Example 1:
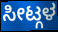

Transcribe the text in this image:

ಸೀಟ್ಗಳ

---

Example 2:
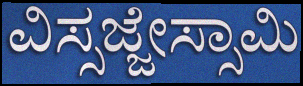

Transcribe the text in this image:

ವಿಸ್ಸಜ್ಜೇಸ್ಸಾಮಿ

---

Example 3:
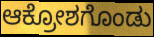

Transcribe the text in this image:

ಆಕ್ರೋಶಗೊಂಡು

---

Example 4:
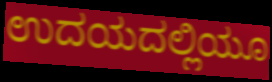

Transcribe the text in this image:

ಉದಯದಲ್ಲಿಯೂ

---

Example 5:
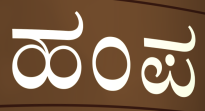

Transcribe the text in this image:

ಹಂಪ